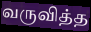
வருவித்த